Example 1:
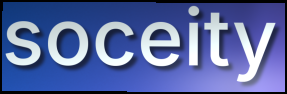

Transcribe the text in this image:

soceity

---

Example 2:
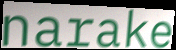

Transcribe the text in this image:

narake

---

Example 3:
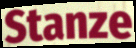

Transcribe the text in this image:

Stanze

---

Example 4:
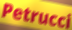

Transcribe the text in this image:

Petrucci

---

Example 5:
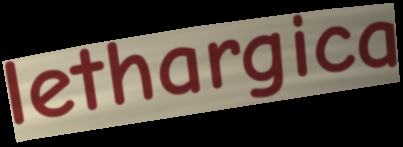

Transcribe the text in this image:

lethargica